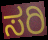
ಸರಿ